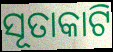
ସୂତାକାଟି